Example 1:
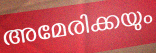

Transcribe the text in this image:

അമേരിക്കയും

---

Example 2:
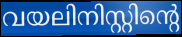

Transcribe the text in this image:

വയലിനിസ്റ്റിന്റെ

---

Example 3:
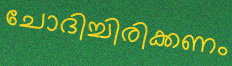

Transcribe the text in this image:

ചോദിച്ചിരിക്കണം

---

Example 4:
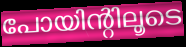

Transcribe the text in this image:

പോയിന്റിലൂടെ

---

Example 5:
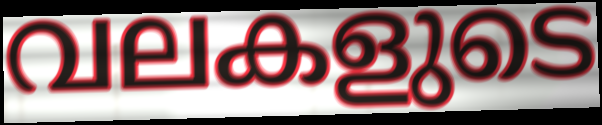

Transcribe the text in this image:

വലകളുടെ